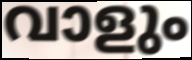
വാളും